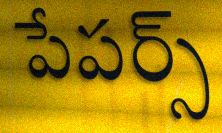
పేపర్స్